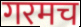
गरमच